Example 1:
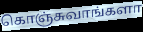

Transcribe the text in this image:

கொஞ்சுவாங்களா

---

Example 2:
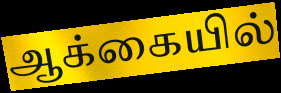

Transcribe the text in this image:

ஆக்கையில்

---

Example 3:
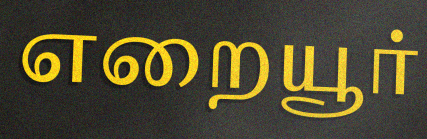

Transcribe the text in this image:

எறையூர்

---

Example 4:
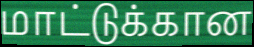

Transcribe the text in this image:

மாட்டுக்கான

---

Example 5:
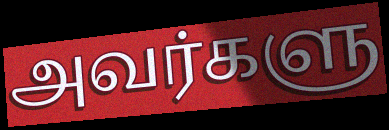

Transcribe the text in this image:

அவர்களு